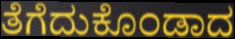
ತೆಗೆದುಕೊಂಡಾದ